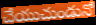
చేయుచుండునో